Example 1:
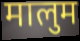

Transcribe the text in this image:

मालुम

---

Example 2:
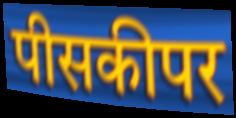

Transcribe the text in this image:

पीसकीपर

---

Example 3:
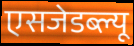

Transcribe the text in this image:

एसजेडब्ल्यू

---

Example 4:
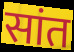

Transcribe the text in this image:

सांत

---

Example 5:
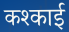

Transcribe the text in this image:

कश्काई